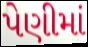
પેણીમાં